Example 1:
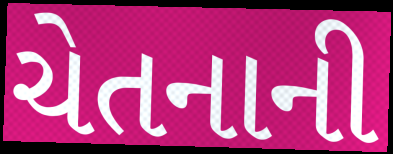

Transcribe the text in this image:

ચેતનાની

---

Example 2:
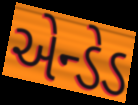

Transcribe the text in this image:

એન્ડેડ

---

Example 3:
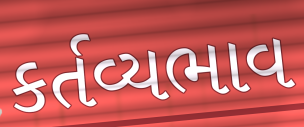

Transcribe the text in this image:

કર્તવ્યભાવ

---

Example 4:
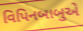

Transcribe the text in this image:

વિપિનબાબુએ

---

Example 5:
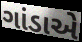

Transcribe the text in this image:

ગાંડાએ